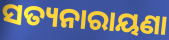
ସତ୍ୟନାରାୟଣା